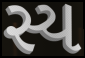
સ્ય